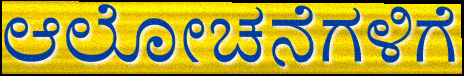
ಆಲೋಚನೆಗಳಿಗೆ